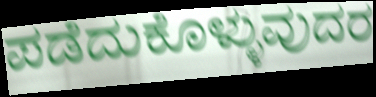
ಪಡೆದುಕೊಳ್ಳುವುದರ